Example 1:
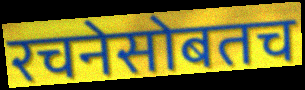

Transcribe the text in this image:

रचनेसोबतच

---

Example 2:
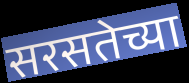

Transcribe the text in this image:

सरसतेच्या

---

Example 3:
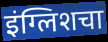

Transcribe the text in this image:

इंग्लिशचा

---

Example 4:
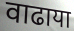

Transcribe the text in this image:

वाढाया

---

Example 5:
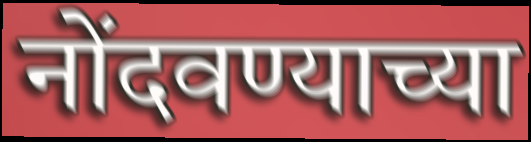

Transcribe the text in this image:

नोंदवण्याच्या